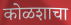
कोळशाचा